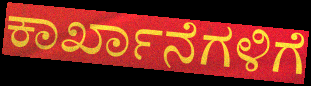
ಕಾರ್ಖಾನೆಗಳಿಗೆ